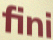
fini